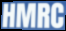
HMRC